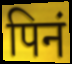
पिनं